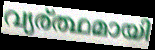
വ്യര്ത്ഥമായി